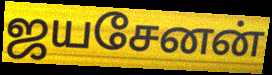
ஜயசேனன்